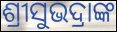
ଶ୍ରୀସୁଭଦ୍ରାଙ୍କ